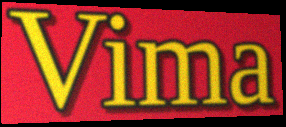
Vima